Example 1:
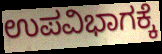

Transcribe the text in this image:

ಉಪವಿಭಾಗಕ್ಕೆ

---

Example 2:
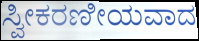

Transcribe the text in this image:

ಸ್ವೀಕರಣೀಯವಾದ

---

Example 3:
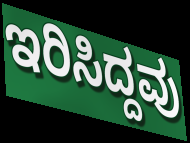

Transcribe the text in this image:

ಇರಿಸಿದ್ದವು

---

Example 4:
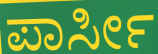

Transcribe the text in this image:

ಪಾರ್ಸೀ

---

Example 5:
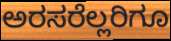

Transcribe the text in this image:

ಅರಸರೆಲ್ಲರಿಗೂ